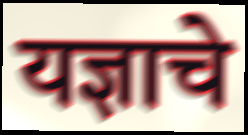
यज्ञाचे